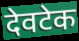
देवटेक